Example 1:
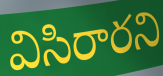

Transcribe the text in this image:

విసిరారని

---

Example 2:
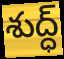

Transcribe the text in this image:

శుద్ధ్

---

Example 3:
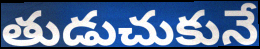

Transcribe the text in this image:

తుడుచుకునే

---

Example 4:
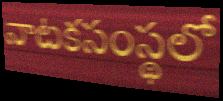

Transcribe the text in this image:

నాటకసంస్థలో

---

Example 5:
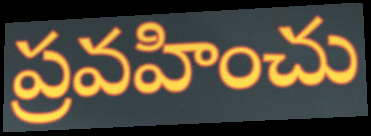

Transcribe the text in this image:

ప్రవహించు